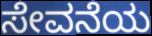
ಸೇವನೆಯ